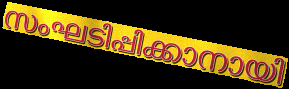
സംഘടിപ്പിക്കാനായി